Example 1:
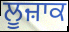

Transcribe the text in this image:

ਲੂਜ਼ਾਕ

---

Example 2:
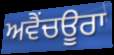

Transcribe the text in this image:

ਅਵੈਂਚਊਰਾ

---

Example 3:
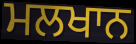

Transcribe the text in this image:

ਮਲਖਾਨ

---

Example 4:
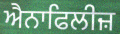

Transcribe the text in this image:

ਐਨਾਫਿਲੀਜ਼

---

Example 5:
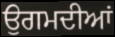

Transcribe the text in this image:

ਉਗਮਦੀਆਂ